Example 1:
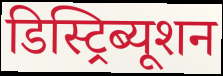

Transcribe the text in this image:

डिस्ट्रिब्यूशन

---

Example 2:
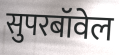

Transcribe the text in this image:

सुपरबॉवेल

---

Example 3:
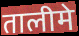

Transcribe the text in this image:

तालीमे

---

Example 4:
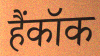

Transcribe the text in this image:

हैंकॉक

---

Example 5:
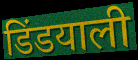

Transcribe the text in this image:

डिंडयाली